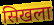
सिखला